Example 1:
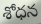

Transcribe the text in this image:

శోధన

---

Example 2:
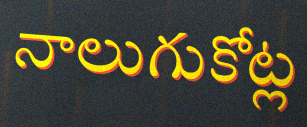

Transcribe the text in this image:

నాలుగుకోట్ల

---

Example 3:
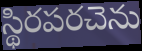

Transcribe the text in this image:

స్థిరపరచెను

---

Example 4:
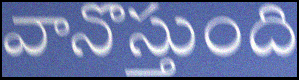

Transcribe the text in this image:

వానొస్తుంది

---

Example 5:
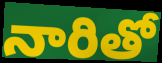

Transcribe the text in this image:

నారితో